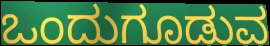
ಒಂದುಗೂಡುವ